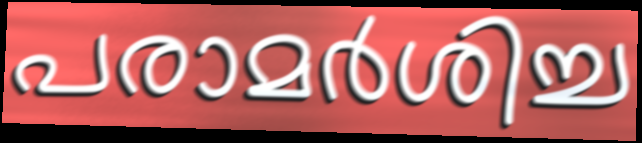
പരാമർശിച്ച